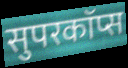
सुपरकॉप्स